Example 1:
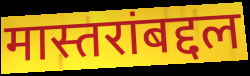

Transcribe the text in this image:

मास्तरांबद्दल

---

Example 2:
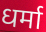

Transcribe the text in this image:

धर्मा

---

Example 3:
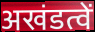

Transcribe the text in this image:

अखंडत्वें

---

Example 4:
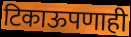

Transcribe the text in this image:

टिकाऊपणाही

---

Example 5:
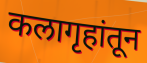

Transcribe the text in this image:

कलागृहांतून